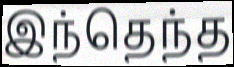
இந்தெந்த